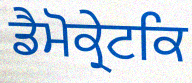
ਡੈਮੋਕ੍ਰੇਟਕਿ